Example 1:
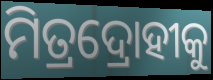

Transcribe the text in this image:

ମିତ୍ରଦ୍ରୋହୀକୁ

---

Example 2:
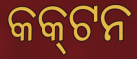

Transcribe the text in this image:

କକ୍‌ଟନ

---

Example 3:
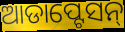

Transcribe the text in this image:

ଆଡାପ୍ଟେସନ୍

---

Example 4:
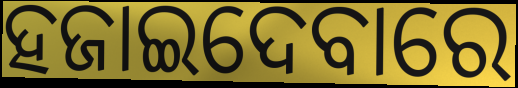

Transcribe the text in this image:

ହଜାଇଦେବାରେ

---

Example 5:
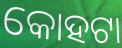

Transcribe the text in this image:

କୋହଟା